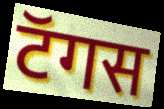
टॅगस